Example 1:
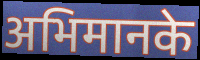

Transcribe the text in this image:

अभिमानके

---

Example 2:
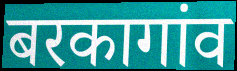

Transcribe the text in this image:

बरकागांव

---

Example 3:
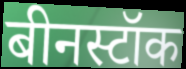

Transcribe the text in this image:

बीनस्टॉक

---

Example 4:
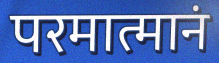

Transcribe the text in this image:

परमात्मानं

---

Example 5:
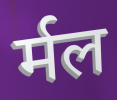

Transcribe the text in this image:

र्मल